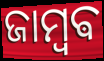
ଜାମ୍ବଵ